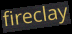
fireclay